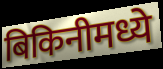
बिकिनीमध्ये